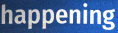
happening